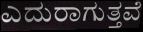
ಎದುರಾಗುತ್ತವೆ